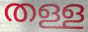
തള്ള